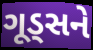
ગૂડ્સને